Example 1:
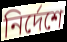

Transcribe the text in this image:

নিৰ্দেশে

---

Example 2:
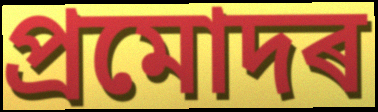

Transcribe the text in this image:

প্ৰমোদৰ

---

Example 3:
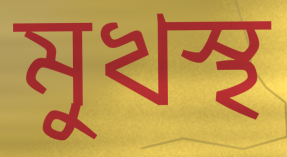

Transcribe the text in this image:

মুখস্থ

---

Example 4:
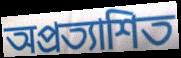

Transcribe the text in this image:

অপ্ৰত্যাশিত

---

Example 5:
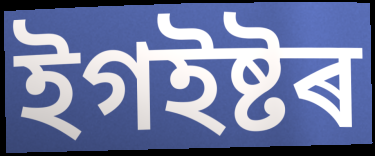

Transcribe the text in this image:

ইগইষ্টৰ